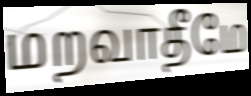
மறவாதீமே